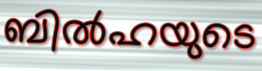
ബിൽഹയുടെ